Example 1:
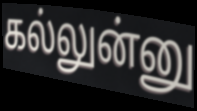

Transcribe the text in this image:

கல்லுன்னு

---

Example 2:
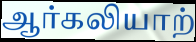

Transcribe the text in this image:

ஆர்கலியாற்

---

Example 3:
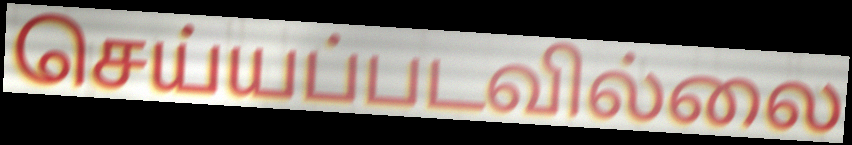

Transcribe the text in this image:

செய்யப்படவில்லை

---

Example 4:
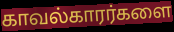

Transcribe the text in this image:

காவல்காரர்களை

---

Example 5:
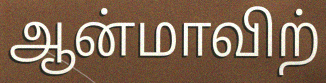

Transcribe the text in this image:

ஆன்மாவிற்